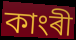
কাংৰী